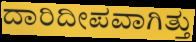
ದಾರಿದೀಪವಾಗಿತ್ತು